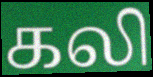
கலி